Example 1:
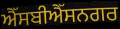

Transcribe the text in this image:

ਐੱਸਬੀਐੱਸਨਗਰ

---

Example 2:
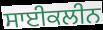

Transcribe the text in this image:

ਸਾਈਕਲੀਨ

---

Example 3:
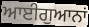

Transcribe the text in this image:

ਆਈਗੁਆਨਾਂ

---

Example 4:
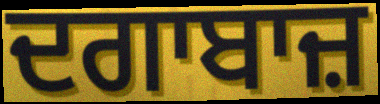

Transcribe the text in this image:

ਦਗਾਬਾਜ਼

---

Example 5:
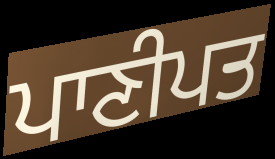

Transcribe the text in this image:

ਪਾਣੀਪਤ